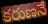
కరుణనే